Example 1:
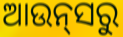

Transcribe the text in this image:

ଆଉନ୍‍ସରୁ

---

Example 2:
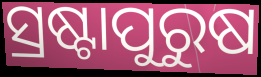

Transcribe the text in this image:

ସ୍ରଷ୍ଟାପୁରୁଷ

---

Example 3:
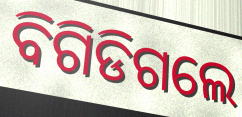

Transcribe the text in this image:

ବିଗିଡିଗଲେ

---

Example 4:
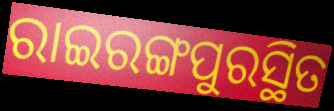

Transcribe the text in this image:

ରାଇରଙ୍ଗପୁରସ୍ଥିତ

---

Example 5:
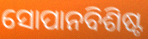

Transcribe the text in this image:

ସୋପାନବିଶିଷ୍ଟ